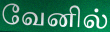
வேனில்